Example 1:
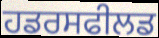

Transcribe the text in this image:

ਹਡਰਸਫੀਲਡ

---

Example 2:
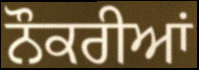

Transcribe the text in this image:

ਨੌਕਰੀਆਂ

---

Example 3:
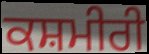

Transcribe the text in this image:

ਕਸ਼ਮੀਰੀ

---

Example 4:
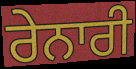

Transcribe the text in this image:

ਰੇਨਾਰੀ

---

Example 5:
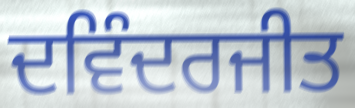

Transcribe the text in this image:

ਦਵਿੰਦਰਜੀਤ